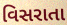
વિસરાતા